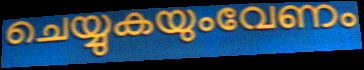
ചെയ്യുകയുംവേണം